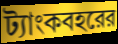
ট্যাংকবহরের